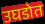
उघडोत